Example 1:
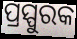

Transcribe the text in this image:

ପ୍ରସ୍ପୁରକ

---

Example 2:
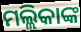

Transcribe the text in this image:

ମଲ୍ଲିକାଙ୍କ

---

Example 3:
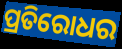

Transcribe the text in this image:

ପ୍ରତିରୋଧର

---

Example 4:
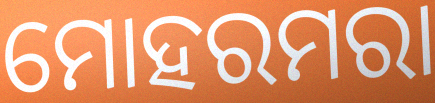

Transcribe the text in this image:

ମୋହରମରା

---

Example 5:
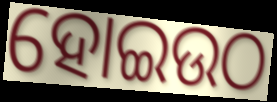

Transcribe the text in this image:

ହୋଇଉଠ